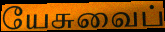
யேசுவைப்